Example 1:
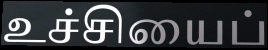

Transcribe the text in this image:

உச்சியைப்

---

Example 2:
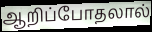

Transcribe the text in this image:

ஆறிப்போதலால்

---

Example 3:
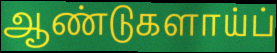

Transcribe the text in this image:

ஆண்டுகளாய்ப்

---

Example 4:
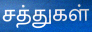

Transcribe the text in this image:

சத்துகள்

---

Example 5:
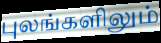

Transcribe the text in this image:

புலங்களிலும்